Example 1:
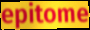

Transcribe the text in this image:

epitome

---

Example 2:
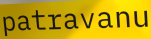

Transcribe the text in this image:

patravanu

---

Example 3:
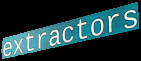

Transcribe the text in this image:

extractors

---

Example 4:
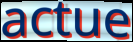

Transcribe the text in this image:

actue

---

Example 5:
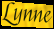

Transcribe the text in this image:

Lynne